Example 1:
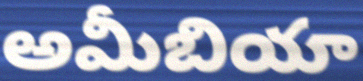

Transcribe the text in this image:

అమీబియా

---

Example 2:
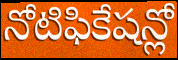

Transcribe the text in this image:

నోటిఫికేషన్లో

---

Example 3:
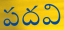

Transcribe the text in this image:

పదవి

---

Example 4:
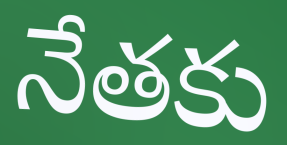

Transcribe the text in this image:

నేతకు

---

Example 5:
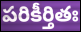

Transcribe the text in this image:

పరికీర్తితః